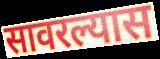
सावरल्यास